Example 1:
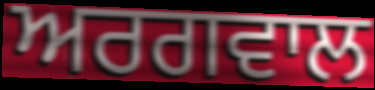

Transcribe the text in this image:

ਅਰਗਵਾਲ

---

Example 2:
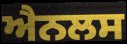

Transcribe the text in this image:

ਐਨਲਸ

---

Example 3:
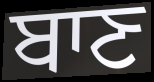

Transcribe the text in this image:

ਬਾਣ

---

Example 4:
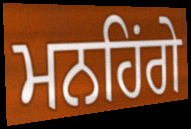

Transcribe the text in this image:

ਮਨਹਿਂਗੇ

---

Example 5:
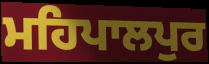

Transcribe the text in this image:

ਮਹਿਪਾਲਪੁਰ